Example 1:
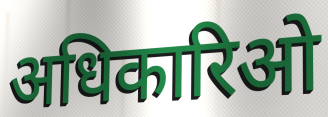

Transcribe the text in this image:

अधिकारिओ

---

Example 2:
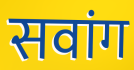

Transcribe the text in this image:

सवांग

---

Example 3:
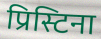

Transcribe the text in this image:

प्रिस्टिना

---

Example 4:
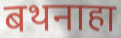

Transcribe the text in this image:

बथनाहा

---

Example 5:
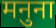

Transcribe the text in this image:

मनुना